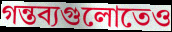
গন্তব্যগুলোতেও